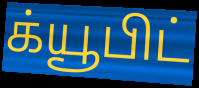
க்யூபிட்